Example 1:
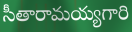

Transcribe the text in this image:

సీతారామయ్యగారి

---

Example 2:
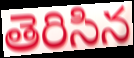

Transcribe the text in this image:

తెరిసిన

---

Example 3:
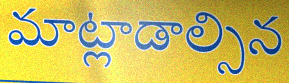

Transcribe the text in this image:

మాట్లాడాల్సిన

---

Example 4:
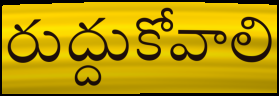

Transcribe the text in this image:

రుద్దుకోవాలి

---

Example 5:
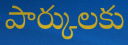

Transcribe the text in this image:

పార్కులకు